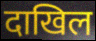
दाखिल